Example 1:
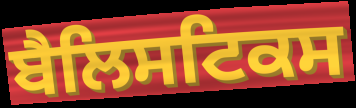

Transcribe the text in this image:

ਬੈਲਿਸਟਿਕਸ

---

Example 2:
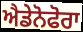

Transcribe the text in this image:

ਐਡੇਨੋਫੋਰਾ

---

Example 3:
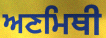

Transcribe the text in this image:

ਅਣਮਿਥੀ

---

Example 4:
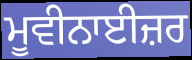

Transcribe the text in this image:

ਮੂਵੀਨਾਈਜ਼ਰ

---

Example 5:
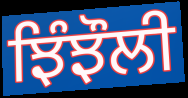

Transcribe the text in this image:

ਝਿੰਝੌਲੀ